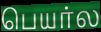
பெயர்ல